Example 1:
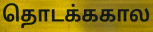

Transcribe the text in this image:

தொடக்ககால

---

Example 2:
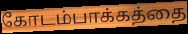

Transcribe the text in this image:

கோடம்பாக்கத்தை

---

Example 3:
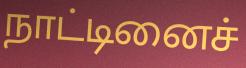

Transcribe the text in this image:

நாட்டினைச்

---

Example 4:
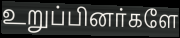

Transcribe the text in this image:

உறுப்பினர்களே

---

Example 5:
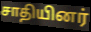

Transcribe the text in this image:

சாதியினர்